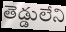
తెడ్డులేని